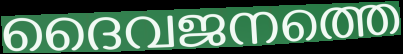
ദൈവജനത്തെ